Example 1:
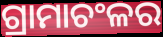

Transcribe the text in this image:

ଗ୍ରାମାଚଂଳର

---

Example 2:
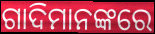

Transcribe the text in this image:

ଗାଦିମାନଙ୍କରେ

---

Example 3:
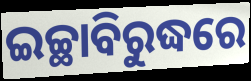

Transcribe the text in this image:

ଇଚ୍ଛାବିରୁଦ୍ଧରେ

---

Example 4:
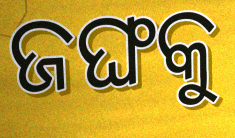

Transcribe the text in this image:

ଜଙ୍ଘକୁ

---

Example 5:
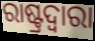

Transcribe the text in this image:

ରାଷ୍ଟ୍ରଦ୍ଵାରା